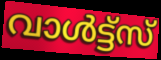
വാൾട്ട്സ്